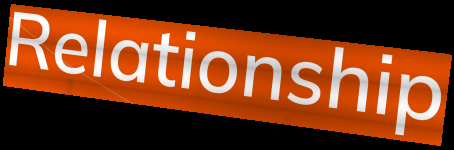
Relationship